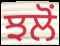
ਝਲੋਂ